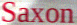
Saxon